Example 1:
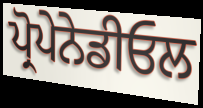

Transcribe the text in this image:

ਪ੍ਰੋਪੇਨੇਡੀਓਲ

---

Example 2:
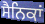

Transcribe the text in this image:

ਸੈਨਿਕਾਂ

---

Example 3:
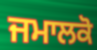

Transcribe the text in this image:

ਜਮਾਲਕੋ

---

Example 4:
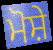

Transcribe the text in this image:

ਮੋਸ਼ੇ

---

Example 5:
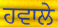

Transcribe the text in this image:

ਹਵਾਲੇ